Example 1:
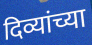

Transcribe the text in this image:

दिव्यांच्या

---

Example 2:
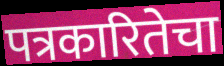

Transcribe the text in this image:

पत्रकारितेचा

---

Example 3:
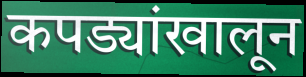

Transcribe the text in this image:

कपड्यांखालून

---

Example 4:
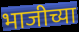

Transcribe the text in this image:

भाजीच्या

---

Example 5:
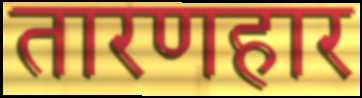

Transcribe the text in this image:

तारणहार